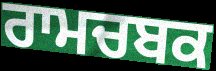
ਰਾਮਚਬਕ